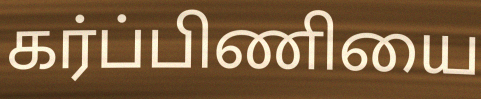
கர்ப்பிணியை